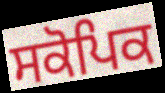
ਸਕੋਪਿਕ